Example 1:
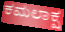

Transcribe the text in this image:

ಕಮಲಾಕ್ಷ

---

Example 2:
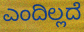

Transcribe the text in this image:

ಎಂದಿಲ್ಲದೆ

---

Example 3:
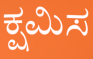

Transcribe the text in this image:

ಕ್ಷಮಿಸ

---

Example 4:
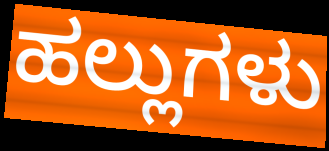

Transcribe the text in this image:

ಹಲ್ಲುಗಳು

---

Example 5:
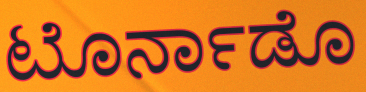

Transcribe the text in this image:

ಟೊರ್ನಾಡೊ